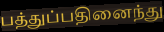
பத்துப்பதினைந்து